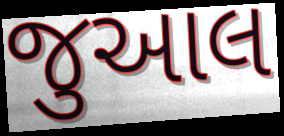
જુઆલ